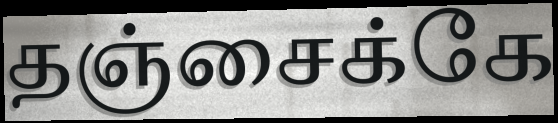
தஞ்சைக்கே